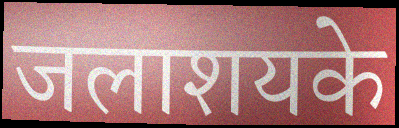
जलाशयके